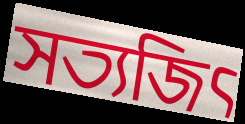
সত্যজিৎ